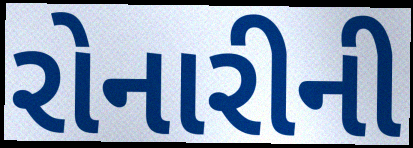
રોનારીની